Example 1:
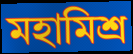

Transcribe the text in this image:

মহামিশ্র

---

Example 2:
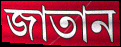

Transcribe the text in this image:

জাতান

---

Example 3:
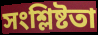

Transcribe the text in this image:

সংশ্লিষ্টতা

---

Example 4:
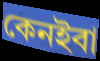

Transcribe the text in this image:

কেনইবা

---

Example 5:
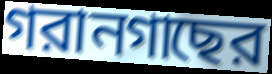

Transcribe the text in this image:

গরানগাছের